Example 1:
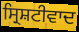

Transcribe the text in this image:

ਸ੍ਰਿਸ਼ਟੀਵਾਦ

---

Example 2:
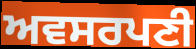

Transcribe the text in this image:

ਅਵਸਰਪਣੀ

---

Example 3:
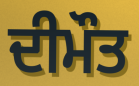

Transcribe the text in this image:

ਦੀਮੌਤ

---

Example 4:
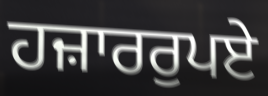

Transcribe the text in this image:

ਹਜ਼ਾਰਰੁਪਏ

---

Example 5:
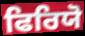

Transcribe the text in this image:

ਫਿਰਿਯੋ